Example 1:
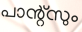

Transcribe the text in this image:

പാന്റ്സും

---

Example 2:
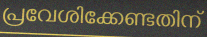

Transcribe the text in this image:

പ്രവേശിക്കേണ്ടതിന്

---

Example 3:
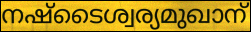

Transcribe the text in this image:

നഷ്ടൈശ്വര്യമുഖാന്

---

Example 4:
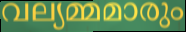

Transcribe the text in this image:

വല്യമ്മമാരും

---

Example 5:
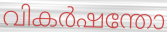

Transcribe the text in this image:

വികർഷന്തോ